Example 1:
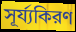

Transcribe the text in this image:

সূর্য্যকিরণ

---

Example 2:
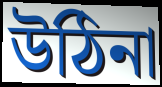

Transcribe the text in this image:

উঠিনা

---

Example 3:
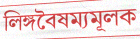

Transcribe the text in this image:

লিঙ্গবৈষম্যমূলক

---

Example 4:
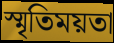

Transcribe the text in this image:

স্মৃতিময়তা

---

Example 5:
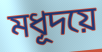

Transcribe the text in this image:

মধূদয়ে